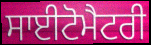
ਸਾਈਟੋਮੈਟਰੀ